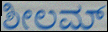
ಶೀಲಮ್